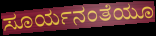
ಸೂರ್ಯನಂತೆಯೂ